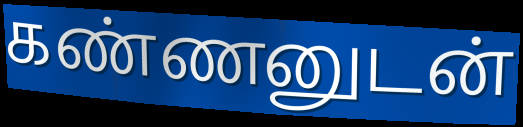
கண்ணனுடன்